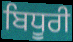
ਬਿਧੂਰੀ